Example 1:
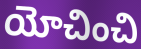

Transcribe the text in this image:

యోచించి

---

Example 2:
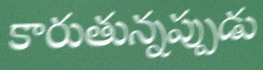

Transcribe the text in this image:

కారుతున్నప్పుడు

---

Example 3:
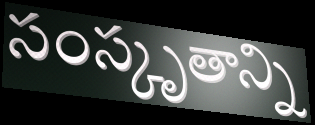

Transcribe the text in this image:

సంస్కృతాన్ని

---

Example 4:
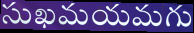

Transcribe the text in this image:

సుఖమయమగు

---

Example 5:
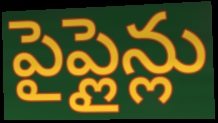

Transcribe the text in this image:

పైప్లైన్లు